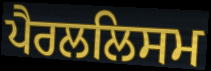
ਪੈਰਲਲਿਸਮ